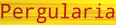
Pergularia